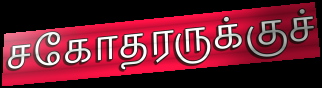
சகோதரருக்குச்